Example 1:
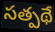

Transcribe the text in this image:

సత్పథే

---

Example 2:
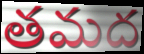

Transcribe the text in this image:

తమద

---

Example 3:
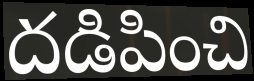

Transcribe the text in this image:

దడిపించి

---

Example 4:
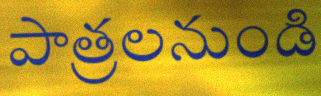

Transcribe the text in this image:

పాత్రలనుండి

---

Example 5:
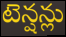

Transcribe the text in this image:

టెన్షన్లు